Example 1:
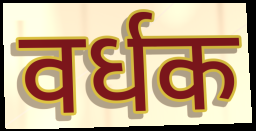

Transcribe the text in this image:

वर्धक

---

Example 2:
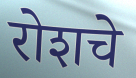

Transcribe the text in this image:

रोशचे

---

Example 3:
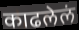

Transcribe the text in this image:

काढलेलं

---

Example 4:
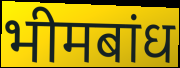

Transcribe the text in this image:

भीमबांध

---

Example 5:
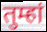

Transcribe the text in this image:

तुम्हां